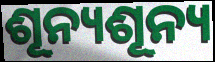
ଶୂନ୍ୟଶୂନ୍ୟ